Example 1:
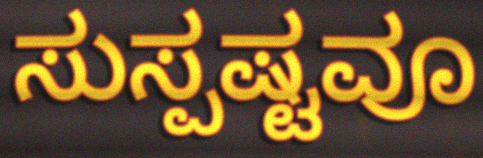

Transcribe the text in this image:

ಸುಸ್ಪಷ್ಟವೂ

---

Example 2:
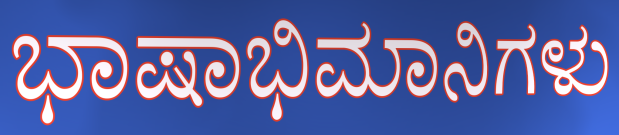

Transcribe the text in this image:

ಭಾಷಾಭಿಮಾನಿಗಳು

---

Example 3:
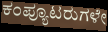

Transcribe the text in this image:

ಕಂಪ್ಯೂಟರುಗಳೇ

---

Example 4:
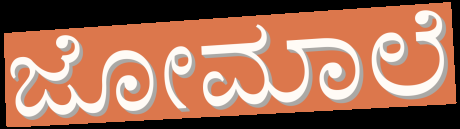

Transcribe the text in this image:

ಜೋಮಾಲೆ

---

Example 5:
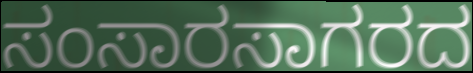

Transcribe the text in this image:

ಸಂಸಾರಸಾಗರದ